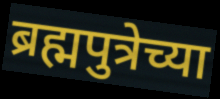
ब्रह्मपुत्रेच्या